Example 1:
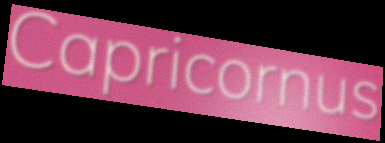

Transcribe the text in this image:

Capricornus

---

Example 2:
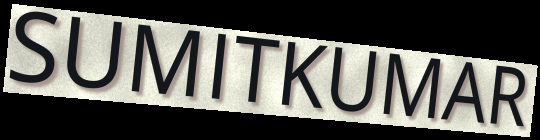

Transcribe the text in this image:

SUMITKUMAR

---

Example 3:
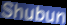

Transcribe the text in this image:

Shubun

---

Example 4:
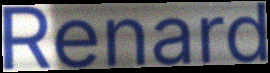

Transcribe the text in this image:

Renard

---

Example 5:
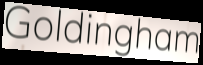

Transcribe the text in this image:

Goldingham